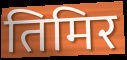
तिमिर